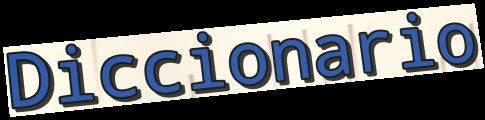
Diccionario